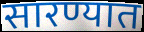
सारण्यात